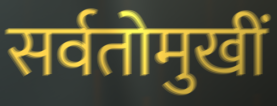
सर्वतोमुखीं